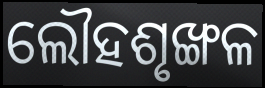
ଲୌହଶୃଙ୍ଖଳ